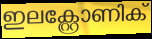
ഇലക്റ്റ്രോണിക്